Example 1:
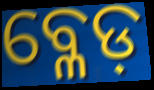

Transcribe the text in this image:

ବ୍ଳେଡ଼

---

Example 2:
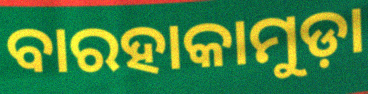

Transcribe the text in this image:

ବାରହାକାମୁଡ଼ା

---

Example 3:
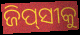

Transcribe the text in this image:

ଜିପ୍‌ସୀକୁ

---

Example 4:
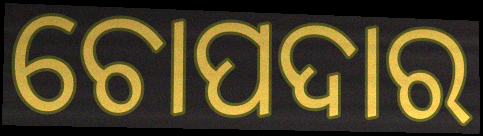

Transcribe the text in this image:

ଚୋପଦାର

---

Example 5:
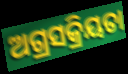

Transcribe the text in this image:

ଅଗ୍ରସକ୍ରିୟତା